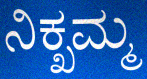
ನಿಕ್ಖಮ್ಮ